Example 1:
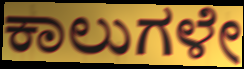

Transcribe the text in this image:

ಕಾಲುಗಳೇ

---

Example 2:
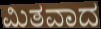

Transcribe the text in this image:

ಮಿತವಾದ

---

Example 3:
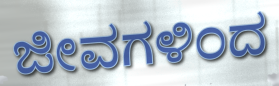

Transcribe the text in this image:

ಜೀವಗಳಿಂದ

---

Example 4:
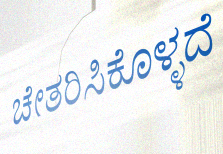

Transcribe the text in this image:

ಚೇತರಿಸಿಕೊಳ್ಳದೆ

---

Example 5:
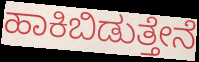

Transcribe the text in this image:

ಹಾಕಿಬಿಡುತ್ತೇನೆ